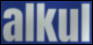
alkul